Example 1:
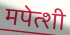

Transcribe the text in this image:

मपेत्शी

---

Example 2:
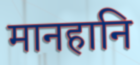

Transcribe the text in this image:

मानहानि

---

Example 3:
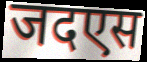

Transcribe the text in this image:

जदएस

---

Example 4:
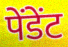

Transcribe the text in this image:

पेंडेंट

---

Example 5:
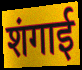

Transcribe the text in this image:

शंगाई